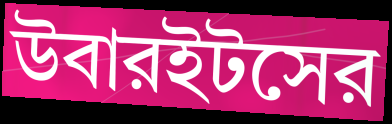
উবারইটসের